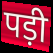
पड़ी